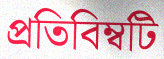
প্রতিবিম্বটি